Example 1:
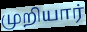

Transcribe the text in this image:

முறியார்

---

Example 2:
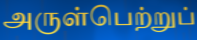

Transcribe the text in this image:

அருள்பெற்றுப்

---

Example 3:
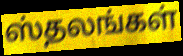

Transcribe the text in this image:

ஸ்தலங்கள்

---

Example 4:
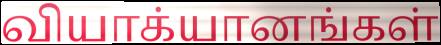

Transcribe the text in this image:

வியாக்யானங்கள்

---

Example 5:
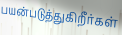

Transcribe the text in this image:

பயன்படுத்துகிறீர்கள்